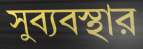
সুব্যবস্থার